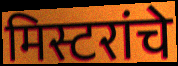
मिस्टरांचे